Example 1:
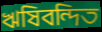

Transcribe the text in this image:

ঋষিবন্দিত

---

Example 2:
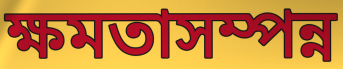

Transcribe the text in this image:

ক্ষমতাসম্পন্ন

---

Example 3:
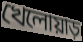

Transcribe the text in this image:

খেলোয়াড়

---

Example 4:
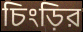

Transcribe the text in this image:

চিংড়ির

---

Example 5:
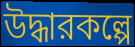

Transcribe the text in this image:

উদ্ধারকল্পে